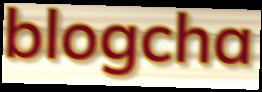
blogcha